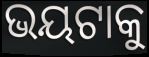
ଭୟଟାକୁ